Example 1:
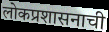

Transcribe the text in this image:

लोकप्रशासनाची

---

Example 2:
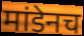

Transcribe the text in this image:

मांडेनच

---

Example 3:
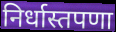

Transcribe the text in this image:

निर्धास्तपणा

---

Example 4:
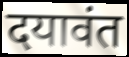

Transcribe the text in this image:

दयावंत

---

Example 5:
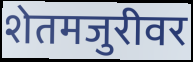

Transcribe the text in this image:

शेतमजुरीवर